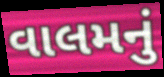
વાલમનું